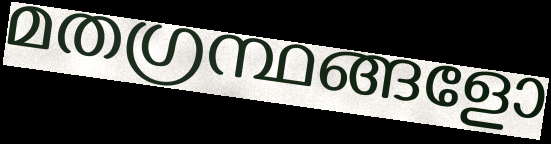
മതഗ്രന്ഥങ്ങളോ